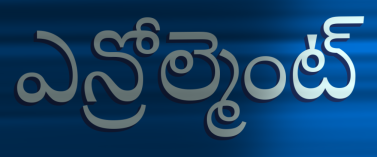
ఎన్రోల్మెంట్